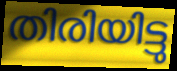
തിരിയിട്ടു